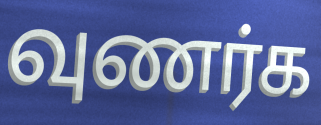
வுணர்க